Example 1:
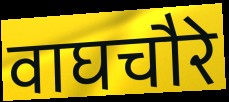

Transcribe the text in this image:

वाघचौरे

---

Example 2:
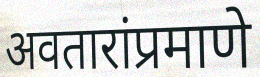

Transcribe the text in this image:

अवतारांप्रमाणे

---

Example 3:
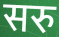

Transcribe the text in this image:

सरु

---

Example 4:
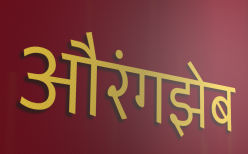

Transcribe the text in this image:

औरंगझेब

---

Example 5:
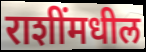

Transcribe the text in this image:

राशींमधील